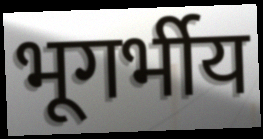
भूगर्भीय